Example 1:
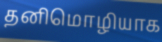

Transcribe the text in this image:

தனிமொழியாக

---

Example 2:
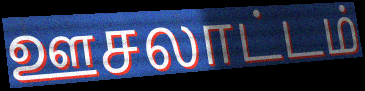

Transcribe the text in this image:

ஊசலாட்டம்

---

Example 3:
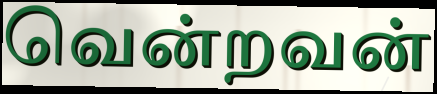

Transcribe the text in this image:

வென்றவன்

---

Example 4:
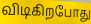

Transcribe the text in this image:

விடிகிறபோது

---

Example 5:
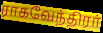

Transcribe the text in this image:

ராகவேந்திரர்